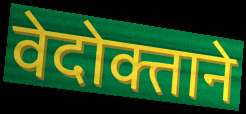
वेदोक्ताने